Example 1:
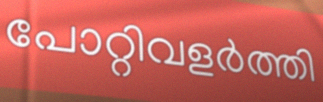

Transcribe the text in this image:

പോറ്റിവളർത്തി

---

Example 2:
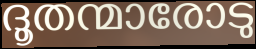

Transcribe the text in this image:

ദൂതന്മാരോടു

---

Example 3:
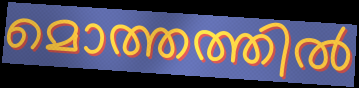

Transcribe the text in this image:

മൊത്തത്തിൽ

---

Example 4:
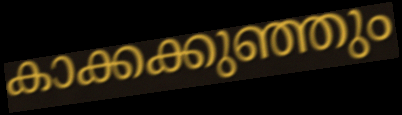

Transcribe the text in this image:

കാക്കക്കുഞ്ഞും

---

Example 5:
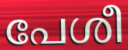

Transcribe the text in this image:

പേശീ